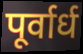
पूर्वार्ध